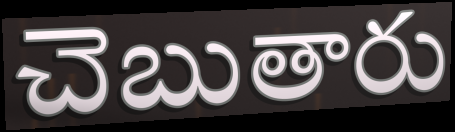
చెబుతారు